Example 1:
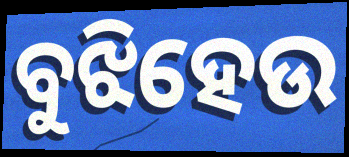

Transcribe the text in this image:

ବୁଝିହେଉ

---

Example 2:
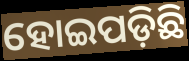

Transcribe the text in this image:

ହୋଇପଡ଼ିଛି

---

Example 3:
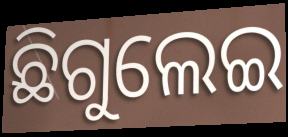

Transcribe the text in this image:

ଛିଗୁଲେଇ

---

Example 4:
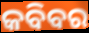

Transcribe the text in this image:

କବିବର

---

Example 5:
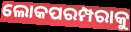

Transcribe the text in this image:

ଲୋକପରମ୍ପରାକୁ